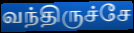
வந்திருச்சே